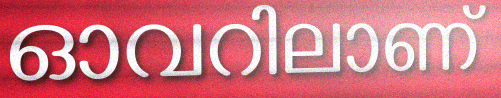
ഓവറിലാണ്